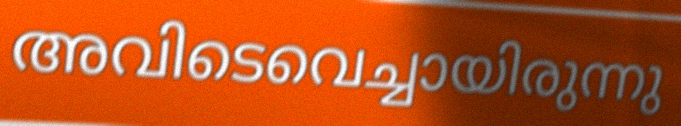
അവിടെവെച്ചായിരുന്നു